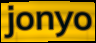
jonyo